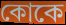
কোকে